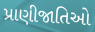
પ્રાણીજાતિઓ